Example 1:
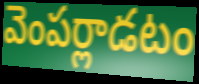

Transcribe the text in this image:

వెంపర్లాడటం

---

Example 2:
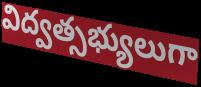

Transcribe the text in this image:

విద్వత్సభ్యులుగా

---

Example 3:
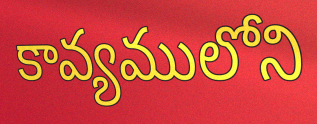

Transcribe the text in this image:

కావ్యములోని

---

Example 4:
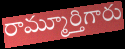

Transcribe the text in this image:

రామ్మూర్తిగారు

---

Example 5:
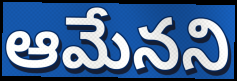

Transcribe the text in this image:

ఆమేనని